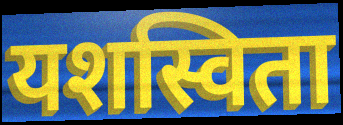
यशस्विता